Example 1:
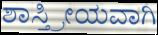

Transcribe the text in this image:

ಶಾಸ್ತ್ರೀಯವಾಗಿ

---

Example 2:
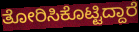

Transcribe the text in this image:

ತೋರಿಸಿಕೊಟ್ಟಿದ್ದಾರೆ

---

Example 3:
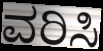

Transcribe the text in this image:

ವರಿಸಿ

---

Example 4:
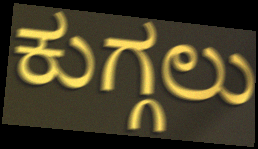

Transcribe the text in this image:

ಕುಗ್ಗಲು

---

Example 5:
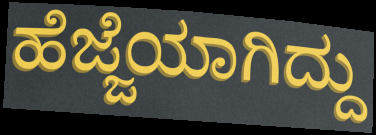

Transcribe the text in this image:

ಹೆಜ್ಜೆಯಾಗಿದ್ದು